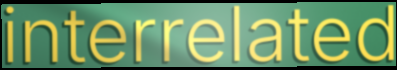
interrelated